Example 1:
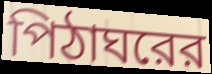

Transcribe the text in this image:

পিঠাঘরের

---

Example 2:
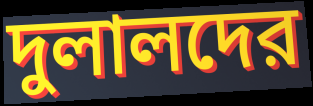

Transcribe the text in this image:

দুলালদের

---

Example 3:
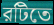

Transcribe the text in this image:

রটিতে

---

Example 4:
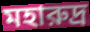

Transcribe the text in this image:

মহারুদ্র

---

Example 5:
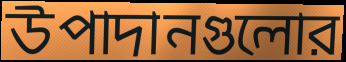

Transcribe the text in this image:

উপাদানগুলোর